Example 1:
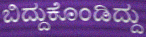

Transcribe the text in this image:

ಬಿದ್ದುಕೊಂಡಿದ್ದು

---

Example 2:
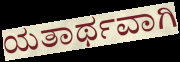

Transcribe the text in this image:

ಯತಾರ್ಥವಾಗಿ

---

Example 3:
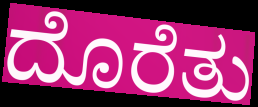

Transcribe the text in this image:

ದೊರೆತು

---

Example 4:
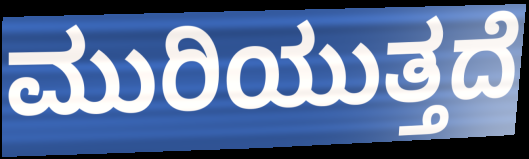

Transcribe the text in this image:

ಮುರಿಯುತ್ತದೆ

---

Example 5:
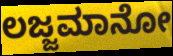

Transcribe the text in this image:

ಲಜ್ಜಮಾನೋ